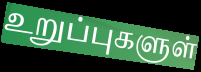
உறுப்புகளுள்